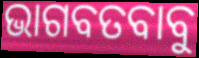
ଭାଗବତବାବୁ